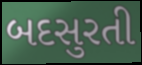
બદસુરતી